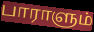
பாராளும்